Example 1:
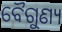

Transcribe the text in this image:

ବୈଗୁଣ୍ୟ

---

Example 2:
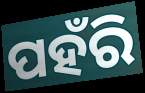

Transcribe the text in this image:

ପହଁରି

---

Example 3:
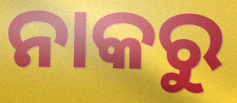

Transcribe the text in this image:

ନାକରୁ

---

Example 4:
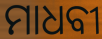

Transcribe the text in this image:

ମାଧବୀ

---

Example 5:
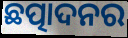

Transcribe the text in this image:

ଛତ୍ପାଦନର